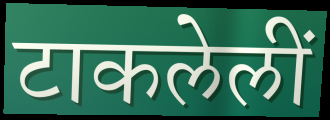
टाकलेलीं